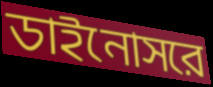
ডাইনোসরে